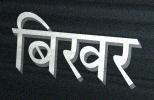
बिखर